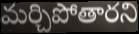
మర్చిపోతారని